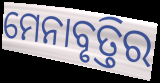
ମେନାବୃତ୍ତିର